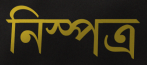
নিস্পত্র